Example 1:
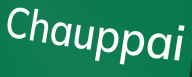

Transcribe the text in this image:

Chauppai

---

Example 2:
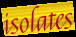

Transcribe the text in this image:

isolates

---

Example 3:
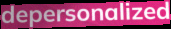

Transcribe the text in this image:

depersonalized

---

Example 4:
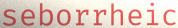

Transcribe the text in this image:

seborrheic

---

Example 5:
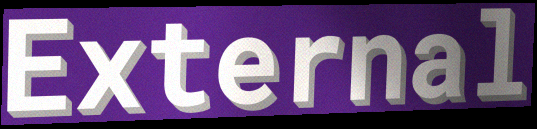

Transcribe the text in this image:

External